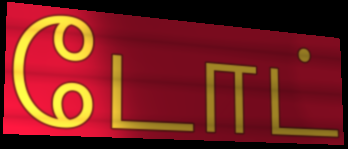
டோட்